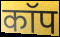
कॉप